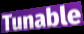
Tunable